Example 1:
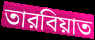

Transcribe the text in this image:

তারবিয়াত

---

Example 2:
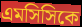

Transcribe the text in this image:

এমসিসিকে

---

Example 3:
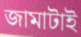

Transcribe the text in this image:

জামাটাই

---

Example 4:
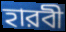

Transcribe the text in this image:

হারবী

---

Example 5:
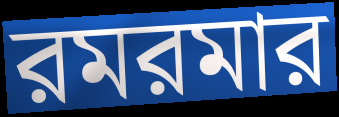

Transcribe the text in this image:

রমরমার